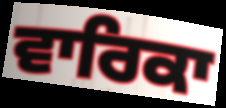
ਵਾਰਿਕਾ